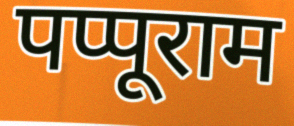
पप्पूराम